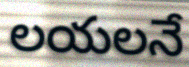
లయలనే